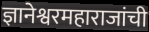
ज्ञानेश्वरमहाराजांची